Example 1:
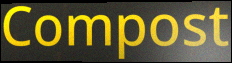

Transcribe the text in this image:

Compost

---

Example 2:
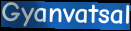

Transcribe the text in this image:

Gyanvatsal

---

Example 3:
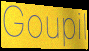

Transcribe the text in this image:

Goupil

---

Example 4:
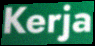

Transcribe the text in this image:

Kerja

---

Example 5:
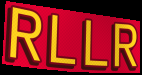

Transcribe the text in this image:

RLLR